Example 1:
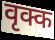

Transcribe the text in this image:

वृक्क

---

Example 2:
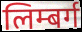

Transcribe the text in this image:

लिम्बर्ग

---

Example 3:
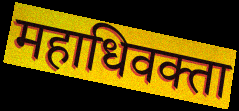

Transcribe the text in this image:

महाधिवक्ता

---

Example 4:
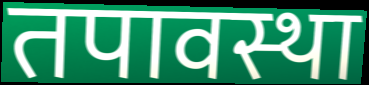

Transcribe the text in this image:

तपावस्था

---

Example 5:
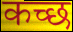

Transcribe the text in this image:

कच्छ